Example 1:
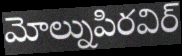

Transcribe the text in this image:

మోల్నుపిరవిర్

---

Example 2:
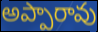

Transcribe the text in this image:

అప్పారావు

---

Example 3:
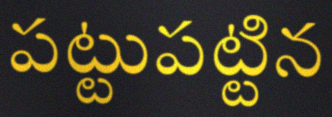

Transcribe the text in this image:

పట్టుపట్టిన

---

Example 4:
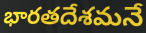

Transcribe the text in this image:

భారతదేశమనే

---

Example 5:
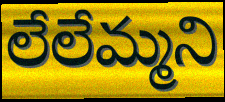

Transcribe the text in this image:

లేలేమ్మని